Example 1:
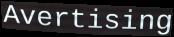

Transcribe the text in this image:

Avertising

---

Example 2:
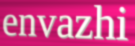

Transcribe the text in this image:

envazhi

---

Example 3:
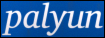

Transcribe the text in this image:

palyun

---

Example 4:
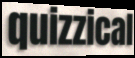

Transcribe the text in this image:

quizzical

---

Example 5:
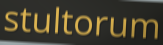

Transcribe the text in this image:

stultorum